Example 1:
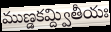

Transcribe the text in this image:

ముణ్డకమ్ద్వితీయః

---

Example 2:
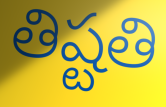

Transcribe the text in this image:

తిష్టతి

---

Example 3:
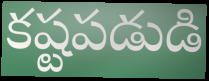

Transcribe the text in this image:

కష్టపడుడి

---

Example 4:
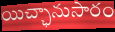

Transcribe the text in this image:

యిచ్ఛానుసారం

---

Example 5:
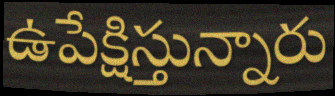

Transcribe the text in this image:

ఉపేక్షిస్తున్నారు